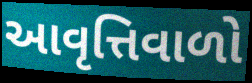
આવૃત્તિવાળો